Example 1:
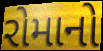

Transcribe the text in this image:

રોમાનો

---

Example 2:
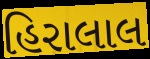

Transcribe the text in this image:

હિરાલાલ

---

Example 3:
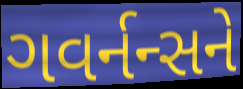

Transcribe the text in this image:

ગવર્નન્સને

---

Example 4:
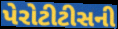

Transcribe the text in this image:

પેરોટીટીસની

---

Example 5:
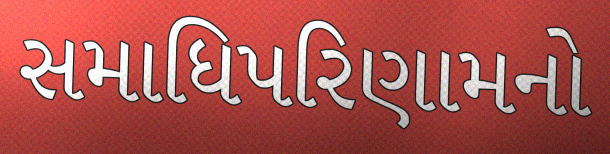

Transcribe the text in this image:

સમાધિપરિણામનો